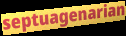
septuagenarian